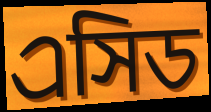
এসিড